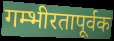
गम्भीरतापूर्वक